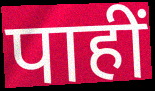
पाहीं